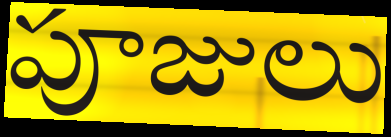
పూజులు